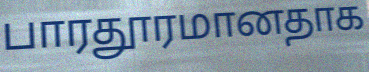
பாரதூரமானதாக